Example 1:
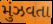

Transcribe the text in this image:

મુંઝવતા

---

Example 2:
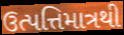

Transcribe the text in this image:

ઉત્પત્તિમાત્રથી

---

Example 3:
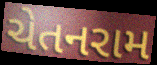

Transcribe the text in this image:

ચેતનરામ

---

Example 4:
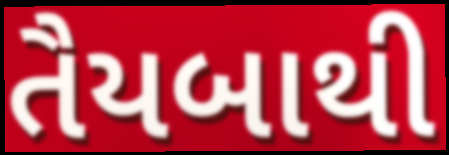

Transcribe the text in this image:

તૈયબાથી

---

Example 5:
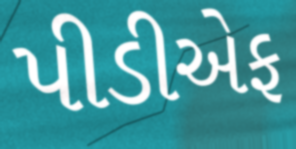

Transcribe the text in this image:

પીડીએફ